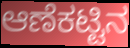
ಆಣೆಕಟ್ಟಿನ